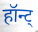
हॉन्ट्